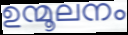
ഉന്മൂലനം